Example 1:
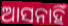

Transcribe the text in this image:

ଆସନାହିଁ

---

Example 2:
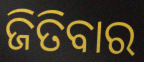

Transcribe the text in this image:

ଜିତିବାର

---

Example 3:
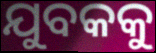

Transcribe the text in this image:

ଯୁବକକୁ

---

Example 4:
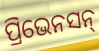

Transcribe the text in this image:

ପ୍ରିଭେନସନ୍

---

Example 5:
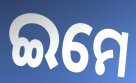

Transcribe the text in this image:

ଇମେ